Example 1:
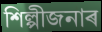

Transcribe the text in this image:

শিল্পীজনাৰ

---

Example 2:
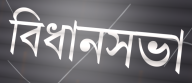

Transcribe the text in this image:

বিধানসভা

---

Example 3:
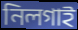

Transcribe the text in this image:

নিলগাই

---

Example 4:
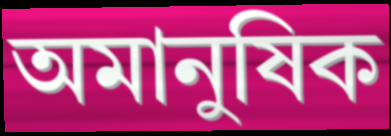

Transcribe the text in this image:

অমানুষিক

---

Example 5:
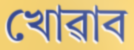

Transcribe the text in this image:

খোৱাব